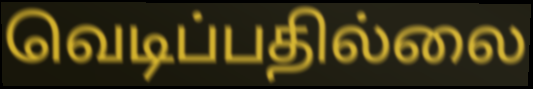
வெடிப்பதில்லை